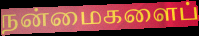
நன்மைகளைப்